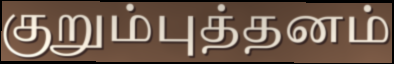
குறும்புத்தனம்